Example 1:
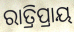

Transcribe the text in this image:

ରାତ୍ରିପ୍ରାୟ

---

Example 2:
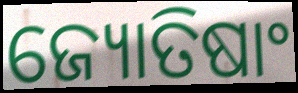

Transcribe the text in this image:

ଜ୍ୟୋତିଷାଂ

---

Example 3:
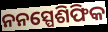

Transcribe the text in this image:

ନନସ୍ପେଶିଫିକ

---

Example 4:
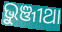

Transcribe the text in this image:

ଭୁଞ୍ଜୀଥା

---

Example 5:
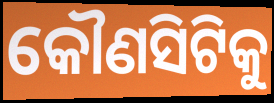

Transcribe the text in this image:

କୌଣସିଟିକୁ